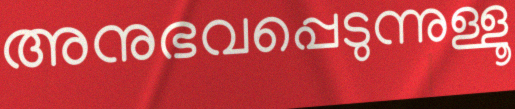
അനുഭവപ്പെടുന്നുള്ളൂ